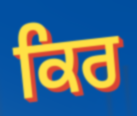
ਕਿਰ